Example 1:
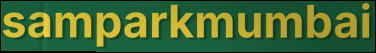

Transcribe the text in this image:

samparkmumbai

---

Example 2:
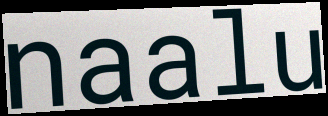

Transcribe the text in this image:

naalu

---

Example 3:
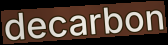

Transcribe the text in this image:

decarbon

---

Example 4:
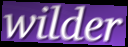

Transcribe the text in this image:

wilder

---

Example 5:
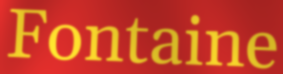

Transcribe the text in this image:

Fontaine